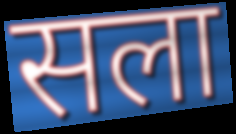
सला